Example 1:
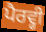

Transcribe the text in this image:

ਪੈਰਵ੍ਹੀ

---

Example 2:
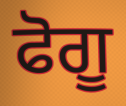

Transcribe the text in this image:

ਫੋਗੂ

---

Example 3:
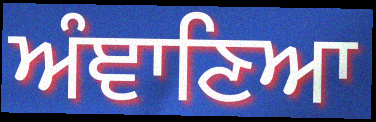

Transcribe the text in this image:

ਅੰਞਾਣਿਆ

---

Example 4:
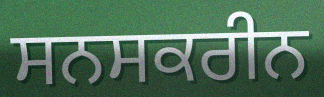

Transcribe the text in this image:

ਸਨਸਕਰੀਨ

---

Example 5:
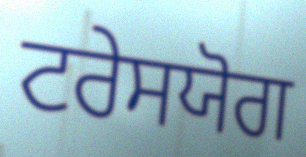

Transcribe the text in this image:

ਟਰੇਸਯੋਗ